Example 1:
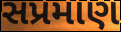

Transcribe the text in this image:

સપ્રમાણ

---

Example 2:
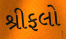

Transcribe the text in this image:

શ્રીફલો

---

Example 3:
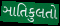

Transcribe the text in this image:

ઞાતિકુલતો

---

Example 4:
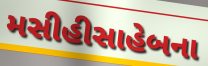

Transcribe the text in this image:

મસીહીસાહેબના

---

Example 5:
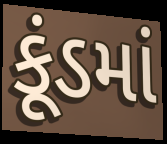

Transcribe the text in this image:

કૂંડમાં